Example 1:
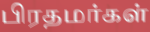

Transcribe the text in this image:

பிரதமர்கள்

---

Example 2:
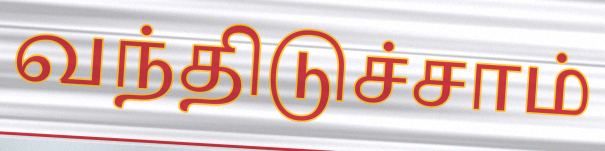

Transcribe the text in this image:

வந்திடுச்சாம்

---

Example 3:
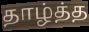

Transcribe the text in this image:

தாழ்த்த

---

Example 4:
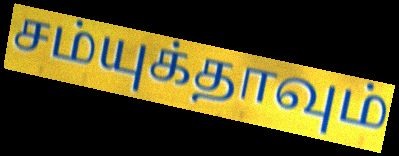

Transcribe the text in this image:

சம்யுக்தாவும்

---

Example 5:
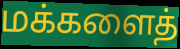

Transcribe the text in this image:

மக்களைத்